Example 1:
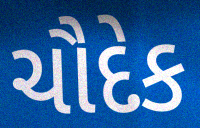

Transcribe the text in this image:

ચૌદેક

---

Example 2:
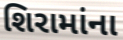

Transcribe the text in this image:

શિરામાંના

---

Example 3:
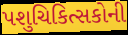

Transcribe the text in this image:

પશુચિકિત્સકોની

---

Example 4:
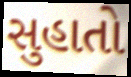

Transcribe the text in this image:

સુહાતો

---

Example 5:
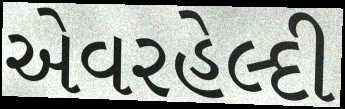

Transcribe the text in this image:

એવરહેલ્દી